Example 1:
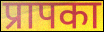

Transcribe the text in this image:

प्रापका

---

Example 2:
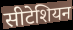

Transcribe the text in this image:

सीटेशियन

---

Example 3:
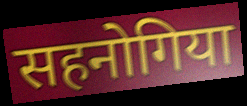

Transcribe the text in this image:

सहनोगिया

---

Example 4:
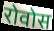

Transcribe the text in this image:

रोवोस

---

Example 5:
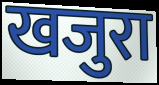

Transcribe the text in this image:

खजुरा